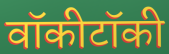
वॉकीटॉकी